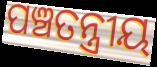
ପଞ୍ଚତନ୍ତ୍ରୀୟ